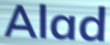
Alad